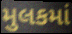
મુલકમાં